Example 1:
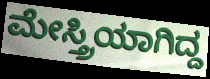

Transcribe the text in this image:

ಮೇಸ್ತ್ರಿಯಾಗಿದ್ದ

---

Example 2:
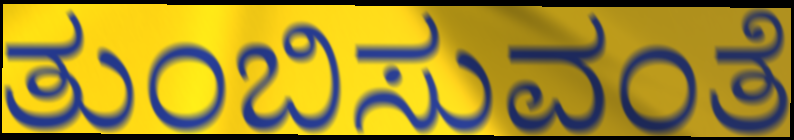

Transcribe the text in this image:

ತುಂಬಿಸುವಂತೆ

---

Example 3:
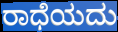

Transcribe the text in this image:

ರಾಧೆಯದು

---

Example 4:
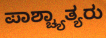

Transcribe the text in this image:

ಪಾಶ್ಚ್ಯಾತ್ಯರು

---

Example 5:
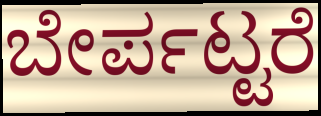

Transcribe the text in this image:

ಬೇರ್ಪಟ್ಟರೆ